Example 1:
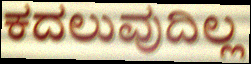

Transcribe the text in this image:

ಕದಲುವುದಿಲ್ಲ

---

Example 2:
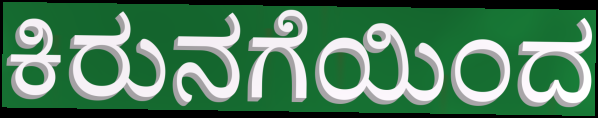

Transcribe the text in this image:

ಕಿರುನಗೆಯಿಂದ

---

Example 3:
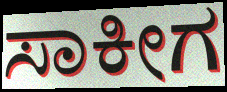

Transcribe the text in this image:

ಸಾಕೀಗ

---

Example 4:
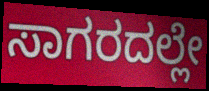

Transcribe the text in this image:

ಸಾಗರದಲ್ಲೇ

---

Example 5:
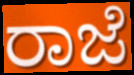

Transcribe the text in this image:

ರಾಜೆ